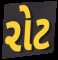
રોટ